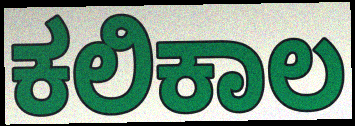
ಕಲಿಕಾಲ